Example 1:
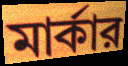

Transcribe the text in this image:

মার্কার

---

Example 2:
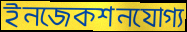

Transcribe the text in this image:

ইনজেকশনযোগ্য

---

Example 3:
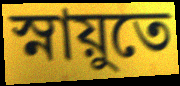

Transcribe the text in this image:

স্নায়ুতে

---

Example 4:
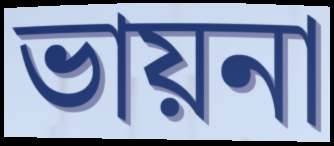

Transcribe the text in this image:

ভায়না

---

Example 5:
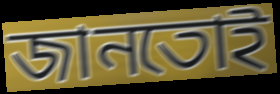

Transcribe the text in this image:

জানতোই